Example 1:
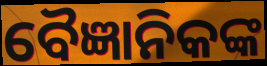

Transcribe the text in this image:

ବୈଜ୍ଞାନିକଙ୍କ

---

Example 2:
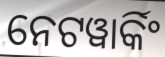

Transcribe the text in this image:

ନେଟୱାର୍କିଂ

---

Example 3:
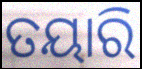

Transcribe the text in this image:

ତୟାରି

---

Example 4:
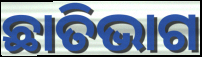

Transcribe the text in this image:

ଛାତିଭାଗ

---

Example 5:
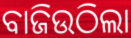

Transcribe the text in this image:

ବାଜିଉଠିଲା